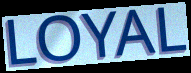
LOYAL